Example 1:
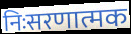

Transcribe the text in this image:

निःसरणात्मक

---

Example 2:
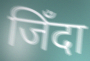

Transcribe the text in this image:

जिँदा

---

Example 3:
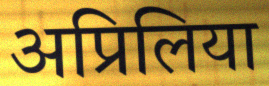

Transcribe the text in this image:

अप्रिलिया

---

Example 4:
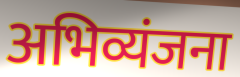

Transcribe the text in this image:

अभिव्यंजना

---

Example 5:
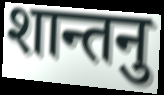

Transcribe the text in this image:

शान्तनु